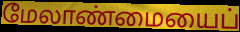
மேலாண்மையைப்